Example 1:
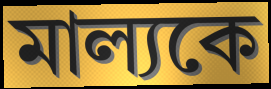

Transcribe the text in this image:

মাল্যকে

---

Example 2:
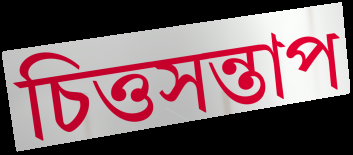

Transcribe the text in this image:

চিত্তসন্তাপ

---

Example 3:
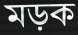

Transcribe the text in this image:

মড়ক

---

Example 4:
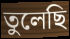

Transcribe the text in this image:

তুলেছি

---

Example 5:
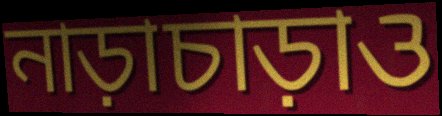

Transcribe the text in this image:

নাড়াচাড়াও